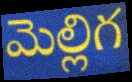
మెల్లిగ